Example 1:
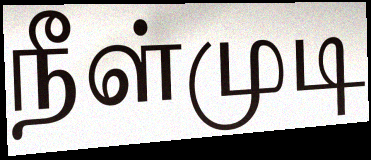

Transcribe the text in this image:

நீள்முடி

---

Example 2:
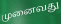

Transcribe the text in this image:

முனைவது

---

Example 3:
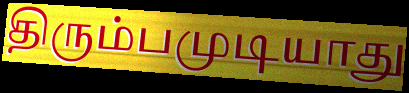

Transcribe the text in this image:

திரும்பமுடியாது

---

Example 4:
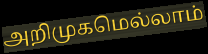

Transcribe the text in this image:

அறிமுகமெல்லாம்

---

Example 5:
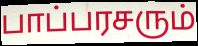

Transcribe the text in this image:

பாப்பரசரும்